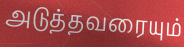
அடுத்தவரையும்